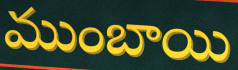
ముంబాయి